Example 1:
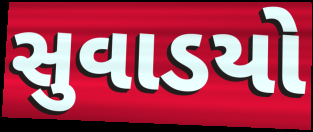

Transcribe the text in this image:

સુવાડયો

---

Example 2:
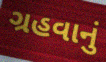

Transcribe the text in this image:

ગ્રહવાનું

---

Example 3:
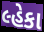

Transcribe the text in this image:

લ્હેકા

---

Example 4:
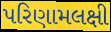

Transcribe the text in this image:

પરિણામલક્ષી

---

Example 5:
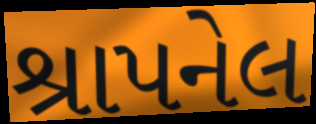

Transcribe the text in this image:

શ્રાપનેલ